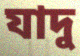
যাদু